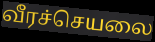
வீரச்செயலை